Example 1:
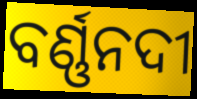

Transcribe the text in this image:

ବର୍ଣ୍ଣନଦୀ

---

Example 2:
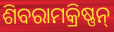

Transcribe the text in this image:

ଶିବରାମକ୍ରିଷ୍ଣନ୍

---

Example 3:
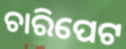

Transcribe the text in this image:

ଚାରିପେଟ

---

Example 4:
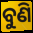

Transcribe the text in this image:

ବୁଣି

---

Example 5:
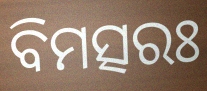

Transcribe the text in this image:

ବିମତ୍ସରଃ